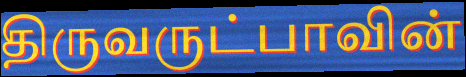
திருவருட்பாவின்